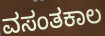
ವಸಂತಕಾಲ